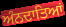
ਅੰਨਦਾਤਿਆਂ